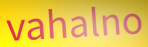
vahalno